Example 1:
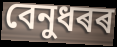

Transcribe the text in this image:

বেনুধৰৰ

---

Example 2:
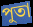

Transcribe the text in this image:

পুতা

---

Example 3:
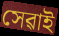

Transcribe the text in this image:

সেৱাই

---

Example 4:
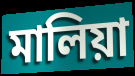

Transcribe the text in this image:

মালিয়া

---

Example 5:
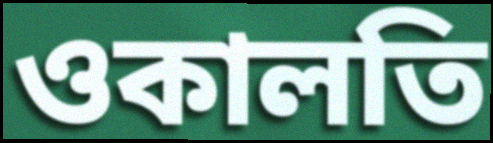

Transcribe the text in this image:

ওকালতি